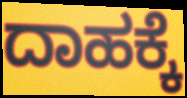
ದಾಹಕ್ಕೆ